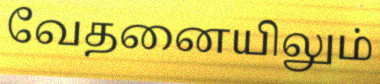
வேதனையிலும்